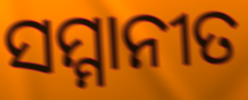
ସମ୍ମାନୀତ